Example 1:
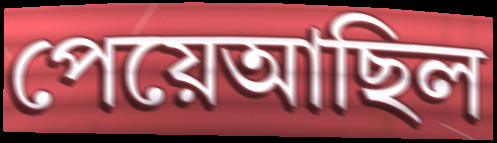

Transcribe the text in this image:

পেয়েআছিল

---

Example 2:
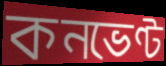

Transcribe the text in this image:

কনভেণ্ট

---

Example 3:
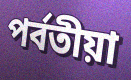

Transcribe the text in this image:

পৰ্বতীয়া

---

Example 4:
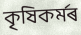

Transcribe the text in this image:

কৃষিকৰ্মৰ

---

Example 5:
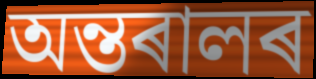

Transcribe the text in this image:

অন্তৰালৰ